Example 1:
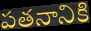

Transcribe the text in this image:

పతనానికి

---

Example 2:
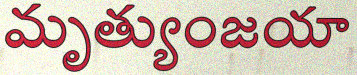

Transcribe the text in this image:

మృత్యుంజయా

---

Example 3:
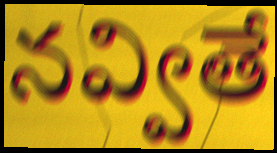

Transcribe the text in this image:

నవ్వితే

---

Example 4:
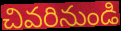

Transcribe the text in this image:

చివరినుండి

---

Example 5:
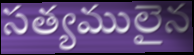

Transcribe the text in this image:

సత్యములైన